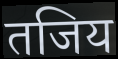
तजिय